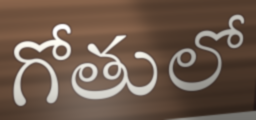
గోతులో